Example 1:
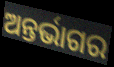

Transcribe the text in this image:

ଅନ୍ତର୍ଭାଗର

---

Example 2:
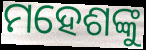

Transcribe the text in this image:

ମହେଶଙ୍କୁ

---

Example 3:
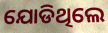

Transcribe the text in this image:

ଯୋଡିଥିଲେ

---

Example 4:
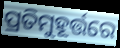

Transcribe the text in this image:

ପ୍ରତିମୁହୂର୍ତ୍ତରେ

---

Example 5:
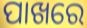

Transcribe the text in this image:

ପାଖରେ